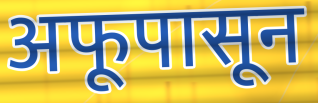
अफूपासून